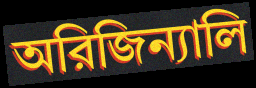
অরিজিন্যালি